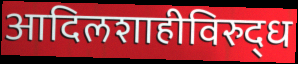
आदिलशाहीविरुद्ध